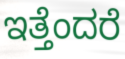
ಇತ್ತೆಂದರೆ